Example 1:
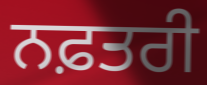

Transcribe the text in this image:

ਨਫ਼ਤਰੀ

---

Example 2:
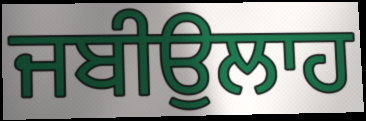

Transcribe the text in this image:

ਜਬੀਉਲਾਹ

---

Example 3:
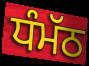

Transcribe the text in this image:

ਧੰਮੱਠ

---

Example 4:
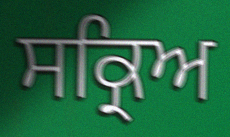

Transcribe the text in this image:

ਸਕ੍ਰਿਅ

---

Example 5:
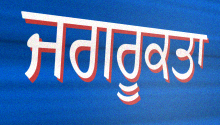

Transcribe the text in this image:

ਜਗਰੂਕਤਾ